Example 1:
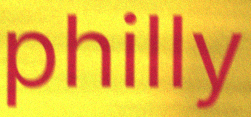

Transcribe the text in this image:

philly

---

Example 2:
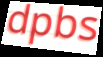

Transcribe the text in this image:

dpbs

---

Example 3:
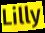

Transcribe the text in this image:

Lilly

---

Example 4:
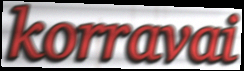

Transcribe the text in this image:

korravai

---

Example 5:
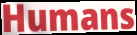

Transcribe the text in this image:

Humans